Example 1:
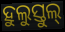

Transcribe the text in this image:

ହୁଲୁସ୍ତୁଲ୍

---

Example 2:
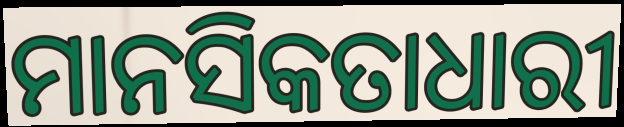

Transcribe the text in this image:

ମାନସିକତାଧାରୀ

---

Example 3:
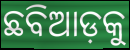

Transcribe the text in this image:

ଛବିଆଡ଼କୁ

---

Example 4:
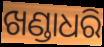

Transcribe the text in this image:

ଖଣ୍ଡାଧରି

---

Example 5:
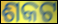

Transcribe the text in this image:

ଶକଟ